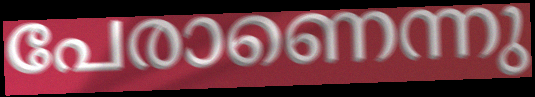
പേരാണെന്നു